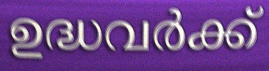
ഉദ്ധവർക്ക്